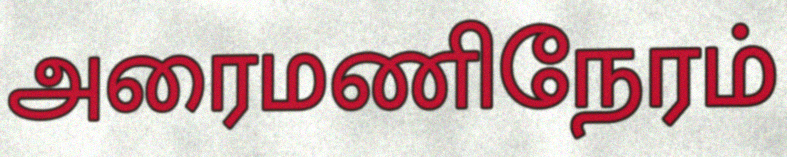
அரைமணிநேரம்